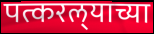
पत्करल्याच्या